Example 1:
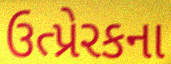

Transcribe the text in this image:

ઉત્પ્રેરકના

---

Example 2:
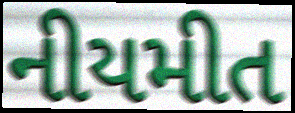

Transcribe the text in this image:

નીયમીત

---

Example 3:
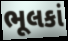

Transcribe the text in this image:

ભૂલકાં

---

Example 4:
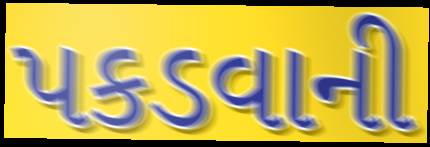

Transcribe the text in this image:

પકડવાની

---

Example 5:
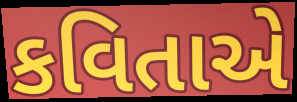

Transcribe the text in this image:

કવિતાએ